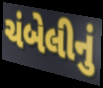
ચંબેલીનું